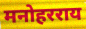
मनोहरराय